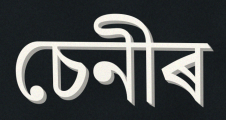
চেনীৰ